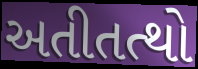
અતીતત્થો